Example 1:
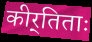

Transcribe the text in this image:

कीर्तिताः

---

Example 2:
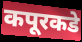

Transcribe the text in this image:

कपूरकडे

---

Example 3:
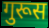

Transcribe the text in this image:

गुरूस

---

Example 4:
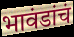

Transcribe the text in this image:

भावंडांचं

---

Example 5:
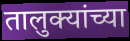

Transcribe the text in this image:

तालुक्यांच्या